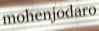
mohenjodaro